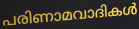
പരിണാമവാദികൾ